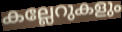
കല്ലേറുകളും